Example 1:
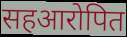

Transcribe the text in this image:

सहआरोपित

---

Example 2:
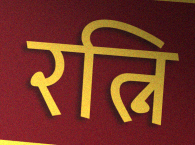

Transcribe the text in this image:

रत्नि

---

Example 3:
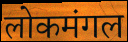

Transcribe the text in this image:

लोकमंगल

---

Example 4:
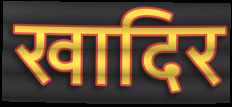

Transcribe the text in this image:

खादिर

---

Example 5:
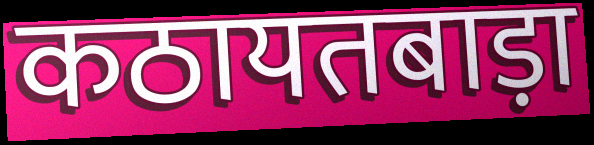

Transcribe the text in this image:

कठायतबाड़ा